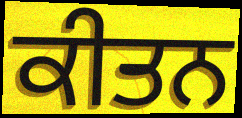
ਕੀਤਨ